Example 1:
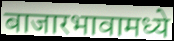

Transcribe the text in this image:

बाजारभावामध्ये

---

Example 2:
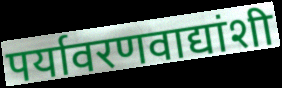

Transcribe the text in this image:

पर्यावरणवाद्यांशी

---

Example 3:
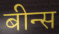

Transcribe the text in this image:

बीन्स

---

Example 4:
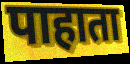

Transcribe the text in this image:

पाहाता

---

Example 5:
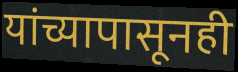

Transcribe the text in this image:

यांच्यापासूनही